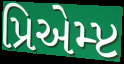
પ્રિએમ્પ્ટ